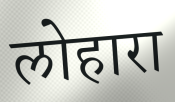
लोहारा